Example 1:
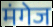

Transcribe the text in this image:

मंगेज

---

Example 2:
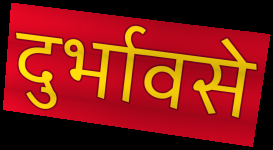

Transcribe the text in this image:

दुर्भावसे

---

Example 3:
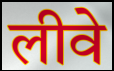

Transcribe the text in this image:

लीवे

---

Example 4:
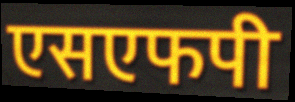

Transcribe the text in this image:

एसएफपी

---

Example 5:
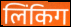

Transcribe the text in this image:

लिंकिग